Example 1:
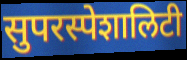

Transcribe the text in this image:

सुपरस्पेशालिटी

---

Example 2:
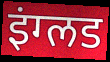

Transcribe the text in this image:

इंग्लड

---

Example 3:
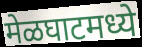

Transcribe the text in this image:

मेळघाटमध्ये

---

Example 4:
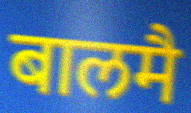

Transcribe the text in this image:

बालमै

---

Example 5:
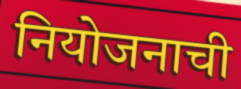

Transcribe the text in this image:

नियोजनाची